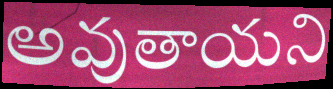
అవుతాయని